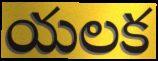
యలక